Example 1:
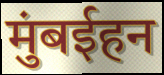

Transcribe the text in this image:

मुंबईहन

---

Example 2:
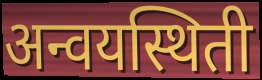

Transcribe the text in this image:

अन्वयस्थिती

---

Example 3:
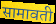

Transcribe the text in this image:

सामावती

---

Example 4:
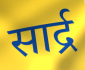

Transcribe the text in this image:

सार्द्र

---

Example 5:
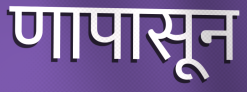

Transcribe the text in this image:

णापासून